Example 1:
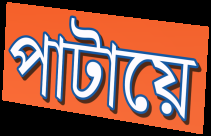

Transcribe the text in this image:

পাটায়ে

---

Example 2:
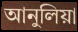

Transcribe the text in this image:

আনুলিয়া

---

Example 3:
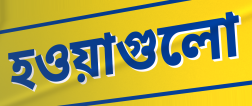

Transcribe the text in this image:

হওয়াগুলো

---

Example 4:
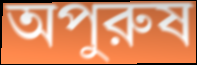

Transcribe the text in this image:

অপুরুষ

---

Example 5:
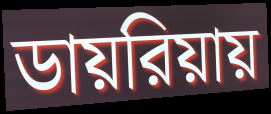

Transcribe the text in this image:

ডায়রিয়ায়